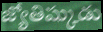
జ్యోతిష్కుడు